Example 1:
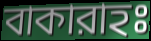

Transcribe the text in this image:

বাকারাহঃ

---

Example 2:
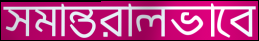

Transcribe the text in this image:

সমান্তরালভাবে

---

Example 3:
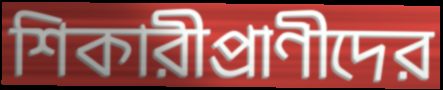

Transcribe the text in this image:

শিকারীপ্রাণীদের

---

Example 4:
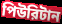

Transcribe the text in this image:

পিউরিটান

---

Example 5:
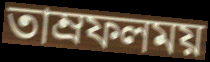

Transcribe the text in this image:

তাম্রফলময়